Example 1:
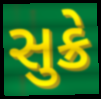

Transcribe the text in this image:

સુક્રે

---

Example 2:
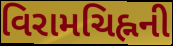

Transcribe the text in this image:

વિરામચિહ્નની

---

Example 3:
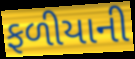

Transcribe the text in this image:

ફળીયાની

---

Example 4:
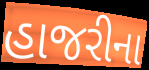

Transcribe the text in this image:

હાજરીના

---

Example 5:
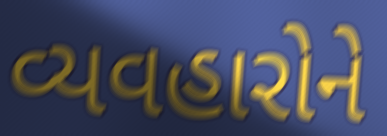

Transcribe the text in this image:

વ્યવહારોને